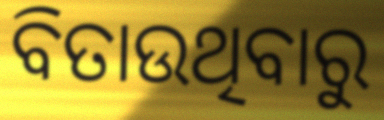
ବିତାଉଥିବାରୁ